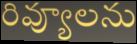
రివ్యూలను